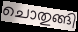
ചൊതുങ്ങി